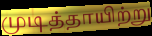
முடித்தாயிற்று